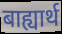
बाह्यार्थ